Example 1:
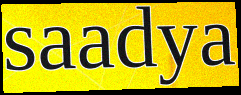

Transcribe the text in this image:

saadya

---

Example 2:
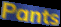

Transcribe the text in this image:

Pants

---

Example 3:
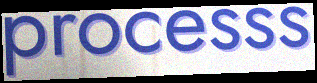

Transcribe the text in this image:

processs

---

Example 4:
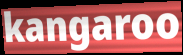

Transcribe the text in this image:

kangaroo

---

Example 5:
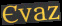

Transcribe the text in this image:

Evaz